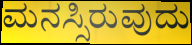
ಮನಸ್ಸಿರುವುದು